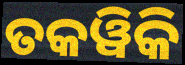
ତକୱିକି